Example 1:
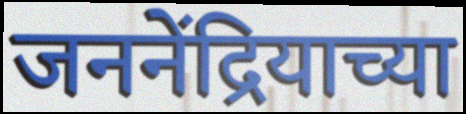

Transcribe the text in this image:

जननेंद्रियाच्या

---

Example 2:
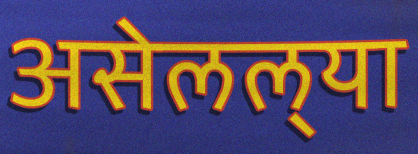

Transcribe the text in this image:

असेलल्या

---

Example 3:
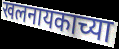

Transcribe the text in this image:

खलनायकाच्या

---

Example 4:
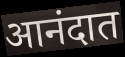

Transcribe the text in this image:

आनंदात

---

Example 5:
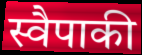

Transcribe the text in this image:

स्वैपाकी